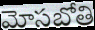
మోసబోతి